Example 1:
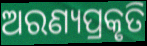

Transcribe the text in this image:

ଅରଣ୍ୟପ୍ରକୃତି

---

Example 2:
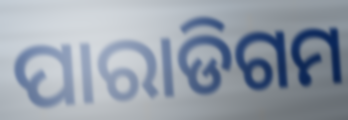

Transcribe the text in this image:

ପାରାଡିଗମ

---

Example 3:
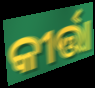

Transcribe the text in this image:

କୀର୍ତ୍ତା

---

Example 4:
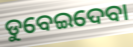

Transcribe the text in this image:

ଡୁବେଇଦେବା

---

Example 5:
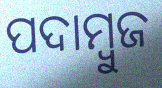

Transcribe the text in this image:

ପଦାମ୍ବୁଜ